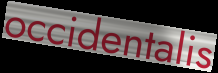
occidentalis